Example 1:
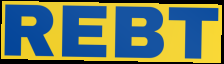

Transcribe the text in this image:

REBT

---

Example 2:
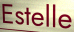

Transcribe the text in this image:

Estelle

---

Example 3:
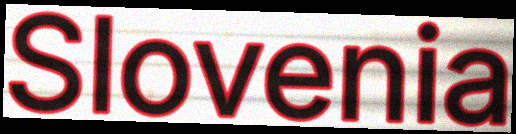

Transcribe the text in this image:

Slovenia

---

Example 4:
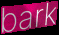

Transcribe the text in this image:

bark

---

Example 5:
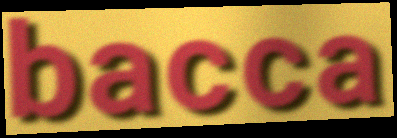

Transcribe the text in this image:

bacca